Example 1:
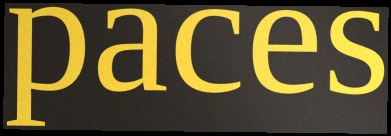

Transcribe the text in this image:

paces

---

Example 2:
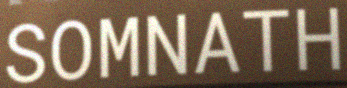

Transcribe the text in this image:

SOMNATH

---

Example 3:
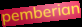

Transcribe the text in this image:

pemberian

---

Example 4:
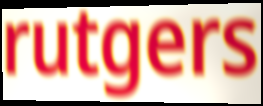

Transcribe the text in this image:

rutgers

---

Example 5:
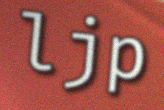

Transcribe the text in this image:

ljp